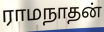
ராமநாதன்